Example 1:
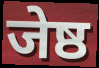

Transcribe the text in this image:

जेष्ठ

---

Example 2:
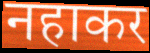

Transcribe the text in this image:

नहाकर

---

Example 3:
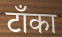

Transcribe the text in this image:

टाँका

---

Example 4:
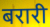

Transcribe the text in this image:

बरारी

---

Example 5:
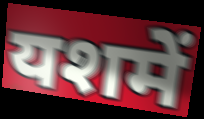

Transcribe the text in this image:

यशमें